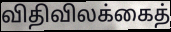
விதிவிலக்கைத்